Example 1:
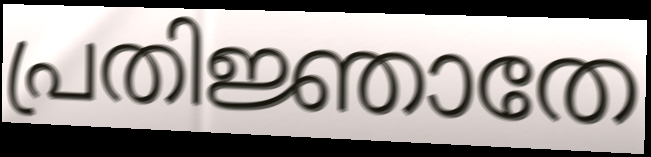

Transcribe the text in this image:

പ്രതിജ്ഞാതേ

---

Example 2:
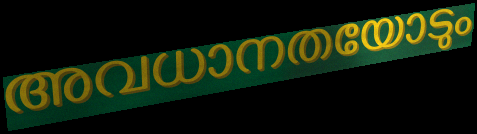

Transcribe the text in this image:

അവധാനതയോടും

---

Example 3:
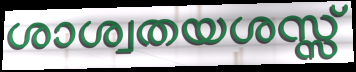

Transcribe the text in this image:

ശാശ്വതയശസ്സ്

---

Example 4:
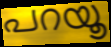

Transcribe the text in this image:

പറയൂ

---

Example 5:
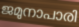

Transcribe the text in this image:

ജമുനാപാരി